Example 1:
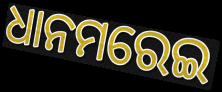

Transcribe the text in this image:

ଧାନମରେଇ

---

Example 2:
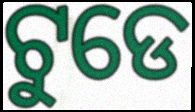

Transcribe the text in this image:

ଟୁଡେ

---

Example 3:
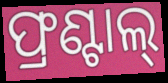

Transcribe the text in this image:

ଫ୍ରଣ୍ଟାଲ୍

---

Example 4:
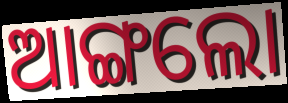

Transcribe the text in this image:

ଆଙ୍ଗଲୋ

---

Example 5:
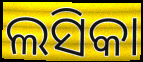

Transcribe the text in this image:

ଲସିକା